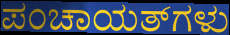
ಪಂಚಾಯತ್‌ಗಳು